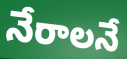
నేరాలనే